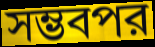
সম্ভবপর